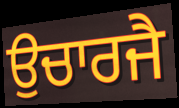
ਉਚਾਰਜੈ